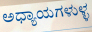
ಅಧ್ಯಾಯಗಳುಳ್ಳ